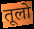
तूलो